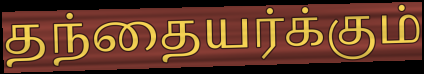
தந்தையர்க்கும்